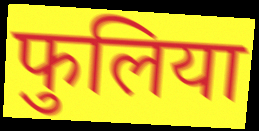
फुलिया